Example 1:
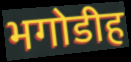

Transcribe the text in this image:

भगोडीह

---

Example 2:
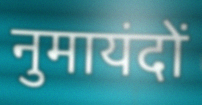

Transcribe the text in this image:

नुमायंदों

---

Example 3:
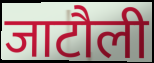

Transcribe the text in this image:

जाटौली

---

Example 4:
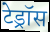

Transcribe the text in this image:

टेड्रॉस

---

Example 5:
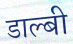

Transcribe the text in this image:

डाल्बी